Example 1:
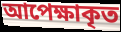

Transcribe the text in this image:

আপেক্ষাকৃত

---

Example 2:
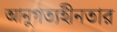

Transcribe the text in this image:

আনুগত্যহীনতার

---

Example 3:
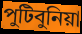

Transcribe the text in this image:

পুটিবুনিয়া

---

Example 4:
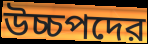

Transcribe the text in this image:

উচ্চপদের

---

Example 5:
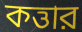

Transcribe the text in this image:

কত্তার